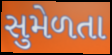
સુમેળતા